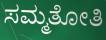
ಸಮ್ಮತೋತಿ